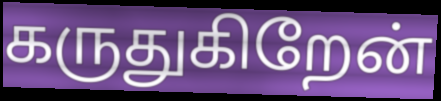
கருதுகிறேன்